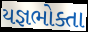
યજ્ઞભોક્તા